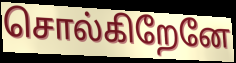
சொல்கிறேனே